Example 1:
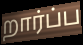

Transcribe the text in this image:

றார்ப்ப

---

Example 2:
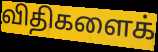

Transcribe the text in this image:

விதிகளைக்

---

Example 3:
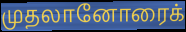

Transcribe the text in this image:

முதலானோரைக்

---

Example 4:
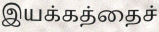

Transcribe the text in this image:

இயக்கத்தைச்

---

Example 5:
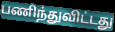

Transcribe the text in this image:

பணிந்துவிட்டது